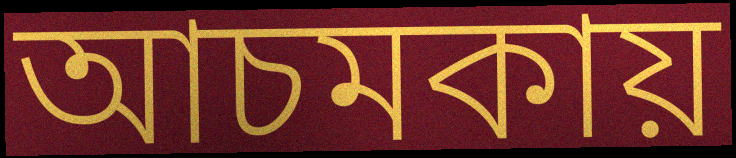
আচমকায়